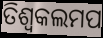
ତିଶ୍ୱକଲମପ